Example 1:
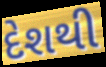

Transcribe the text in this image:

દેશથી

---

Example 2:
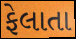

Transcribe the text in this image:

ફેલાતા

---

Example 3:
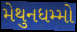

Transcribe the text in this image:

મેથુનધમ્મો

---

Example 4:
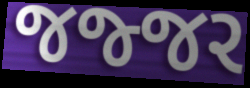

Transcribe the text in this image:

જજ્જર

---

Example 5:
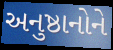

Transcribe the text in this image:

અનુષ્ઠાનોને